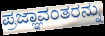
ಪ್ರಜ್ಞಾವಂತರನ್ನು